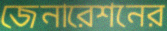
জেনারেশনের